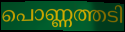
പൊണ്ണത്തടി